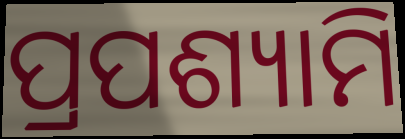
ପ୍ରପଶ୍ୟାମି